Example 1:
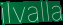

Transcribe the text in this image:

ilvalla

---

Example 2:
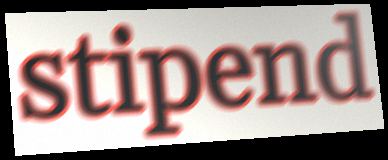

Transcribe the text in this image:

stipend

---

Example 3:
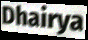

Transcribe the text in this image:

Dhairya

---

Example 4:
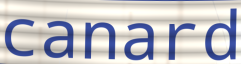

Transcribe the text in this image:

canard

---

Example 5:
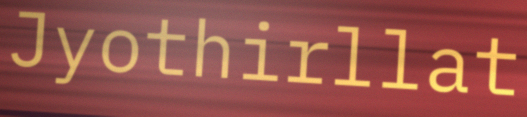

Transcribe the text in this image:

Jyothirllat